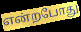
என்றபோது